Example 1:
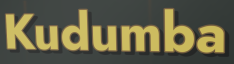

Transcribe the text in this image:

Kudumba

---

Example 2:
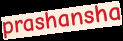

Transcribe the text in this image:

prashansha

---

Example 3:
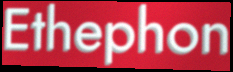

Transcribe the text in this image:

Ethephon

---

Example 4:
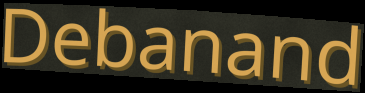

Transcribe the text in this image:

Debanand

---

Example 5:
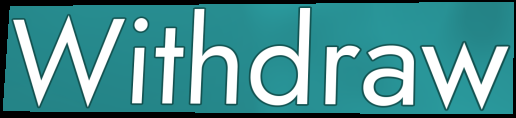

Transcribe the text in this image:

Withdraw